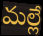
మల్లే